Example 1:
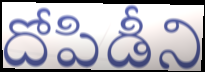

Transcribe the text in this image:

దోపిడీని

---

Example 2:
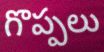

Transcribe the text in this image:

గొప్పలు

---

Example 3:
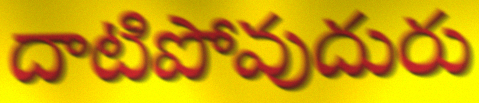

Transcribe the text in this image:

దాటిపోవుదురు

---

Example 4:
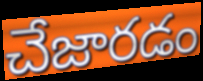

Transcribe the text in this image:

చేజారడం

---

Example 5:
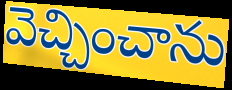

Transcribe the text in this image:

వెచ్చించాను